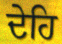
ਦੇਹਿ